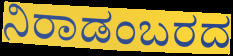
ನಿರಾಡಂಬರದ